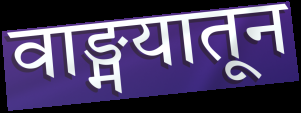
वाङ्मयातून